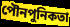
পৌনপুনিকতা